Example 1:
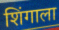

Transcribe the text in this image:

शिंगाला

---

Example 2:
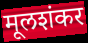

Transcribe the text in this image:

मूलशंकर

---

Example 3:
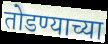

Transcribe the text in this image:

तोडण्याच्या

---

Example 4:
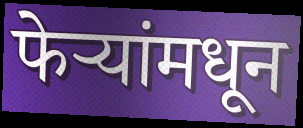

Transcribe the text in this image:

फेऱ्यांमधून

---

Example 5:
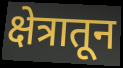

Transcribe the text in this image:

क्षेत्रातून